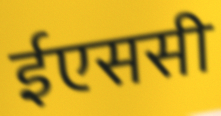
ईएससी